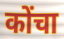
कोंचा